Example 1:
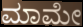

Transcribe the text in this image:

ಮಾಮೇ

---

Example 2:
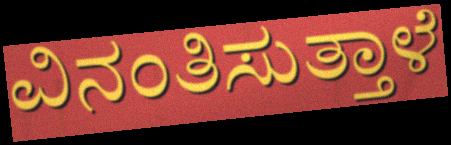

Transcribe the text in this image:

ವಿನಂತಿಸುತ್ತಾಳೆ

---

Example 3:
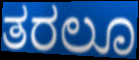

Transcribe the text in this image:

ತರಲೂ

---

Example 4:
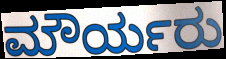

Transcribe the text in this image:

ಮೌರ್ಯರು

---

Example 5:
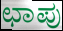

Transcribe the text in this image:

ಛಾಪು